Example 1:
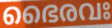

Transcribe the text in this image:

ഭൈരവഃ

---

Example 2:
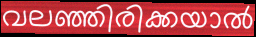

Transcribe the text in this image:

വലഞ്ഞിരിക്കയാൽ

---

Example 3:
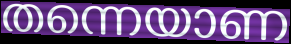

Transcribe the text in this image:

തന്നെയാണ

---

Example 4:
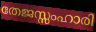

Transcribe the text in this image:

തേജസ്സംഹാരി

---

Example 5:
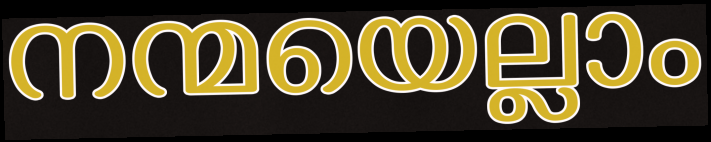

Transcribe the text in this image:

നന്മയെല്ലാം